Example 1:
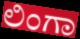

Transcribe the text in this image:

ಲಿಂಗಾ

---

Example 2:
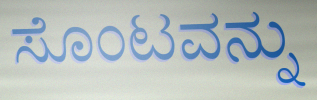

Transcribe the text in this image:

ಸೊಂಟವನ್ನು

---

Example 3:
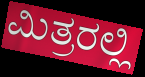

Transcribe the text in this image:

ಮಿತ್ರರಲ್ಲಿ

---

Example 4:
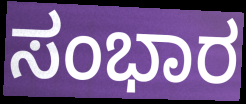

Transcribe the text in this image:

ಸಂಭಾರ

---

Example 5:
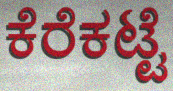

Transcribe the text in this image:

ಕೆರೆಕಟ್ಟೆ